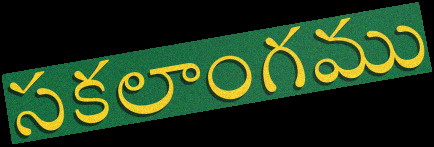
సకలాంగము